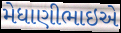
મેધાણીભાઇએ